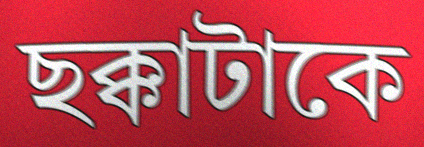
ছক্কাটাকে